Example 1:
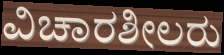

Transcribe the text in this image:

ವಿಚಾರಶೀಲರು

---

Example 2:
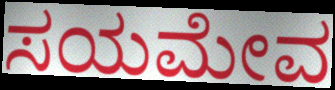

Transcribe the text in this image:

ಸಯಮೇವ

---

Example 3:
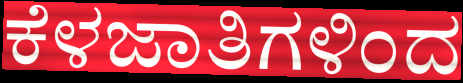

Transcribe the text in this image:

ಕೆಳಜಾತಿಗಳಿಂದ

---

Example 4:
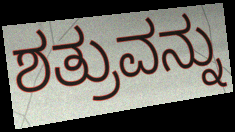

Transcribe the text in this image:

ಶತ್ರುವನ್ನು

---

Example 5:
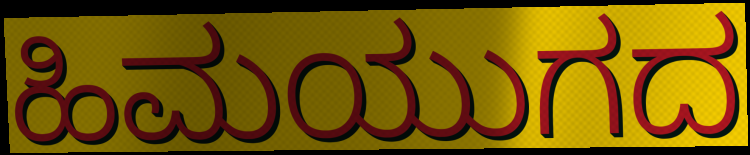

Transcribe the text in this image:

ಹಿಮಯುಗದ